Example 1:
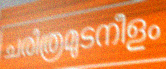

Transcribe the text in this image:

ചരിത്രമുടനീളം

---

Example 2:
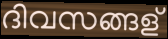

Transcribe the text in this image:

ദിവസങ്ങള്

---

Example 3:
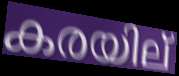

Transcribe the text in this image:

കരയില്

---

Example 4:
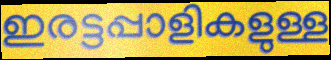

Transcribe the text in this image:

ഇരട്ടപ്പാളികളുള്ള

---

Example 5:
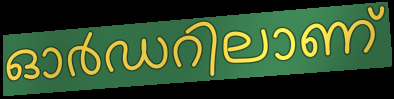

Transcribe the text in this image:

ഓർഡറിലാണ്